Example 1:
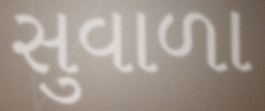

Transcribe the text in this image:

સુવાળા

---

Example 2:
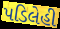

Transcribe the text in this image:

પડિલેહી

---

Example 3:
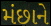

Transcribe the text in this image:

મંછાને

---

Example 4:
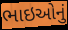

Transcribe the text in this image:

ભાઇઓનું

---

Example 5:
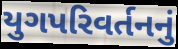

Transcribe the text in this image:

યુગપરિવર્તનનું